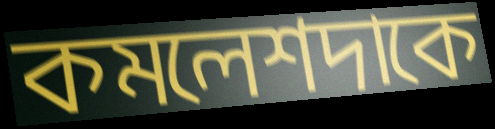
কমলেশদাকে